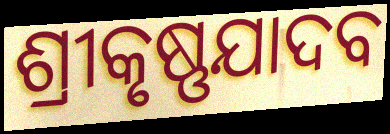
ଶ୍ରୀକୃଷ୍ଣଯାଦବ